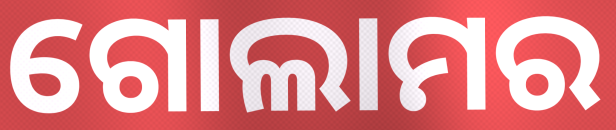
ଗୋଲାମର